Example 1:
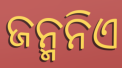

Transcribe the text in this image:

ଜନ୍ମନିଏ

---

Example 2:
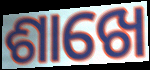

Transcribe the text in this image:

ଶାଖେ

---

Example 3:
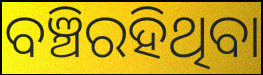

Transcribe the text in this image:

ବଞ୍ଚିରହିଥିବା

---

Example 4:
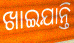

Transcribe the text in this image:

ଖାଇଯାନ୍ତି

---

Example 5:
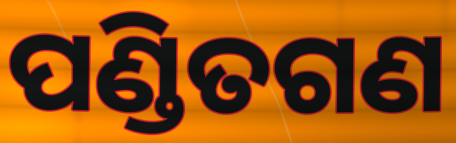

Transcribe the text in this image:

ପଣ୍ଡିତଗଣ